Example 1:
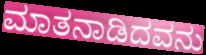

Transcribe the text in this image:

ಮಾತನಾಡಿದವನು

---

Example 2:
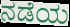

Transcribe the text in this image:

ನಡೆಯ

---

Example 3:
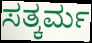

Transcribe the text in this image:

ಸತ್ಕರ್ಮ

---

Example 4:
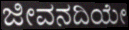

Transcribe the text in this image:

ಜೀವನದಿಯೇ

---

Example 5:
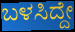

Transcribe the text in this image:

ಬಳಸಿದ್ದೇ